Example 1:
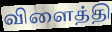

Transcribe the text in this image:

விளைத்தி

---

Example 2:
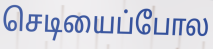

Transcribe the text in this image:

செடியைப்போல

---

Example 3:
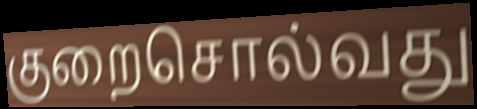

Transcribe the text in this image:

குறைசொல்வது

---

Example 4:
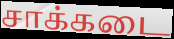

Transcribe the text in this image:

சாக்கடை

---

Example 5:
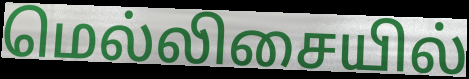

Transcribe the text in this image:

மெல்லிசையில்